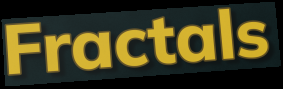
Fractals